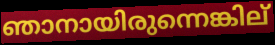
ഞാനായിരുന്നെങ്കില്